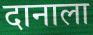
दानाला